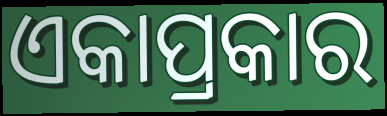
ଏକାପ୍ରକାର